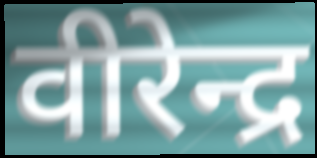
वीरेन्द्र